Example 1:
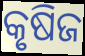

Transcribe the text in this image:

କୃଷିଜ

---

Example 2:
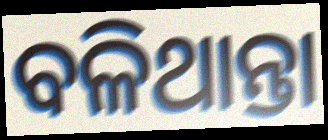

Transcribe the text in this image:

ବଳିଥାନ୍ତା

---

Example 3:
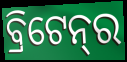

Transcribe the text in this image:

ବ୍ରିଟେନ୍‌ର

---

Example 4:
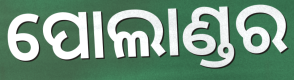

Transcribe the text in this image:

ପୋଲାଣ୍ଡର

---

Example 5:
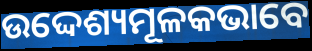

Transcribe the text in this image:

ଉଦ୍ଦେଶ୍ୟମୂଳକଭାବେ